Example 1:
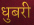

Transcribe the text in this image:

धुबरी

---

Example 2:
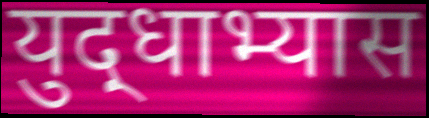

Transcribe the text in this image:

युद्धाभ्यास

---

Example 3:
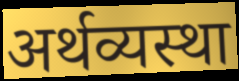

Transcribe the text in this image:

अर्थव्यस्था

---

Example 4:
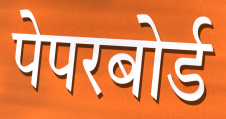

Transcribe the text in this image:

पेपरबोर्ड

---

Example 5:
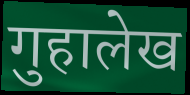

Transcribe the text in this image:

गुहालेख